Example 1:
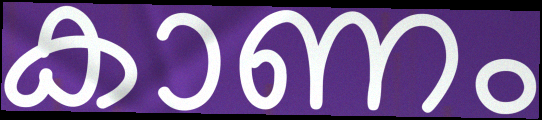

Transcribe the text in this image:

കാണം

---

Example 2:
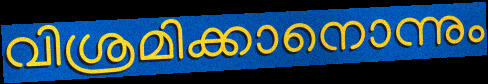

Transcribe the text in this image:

വിശ്രമിക്കാനൊന്നും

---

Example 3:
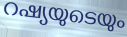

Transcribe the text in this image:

റഷ്യയുടെയും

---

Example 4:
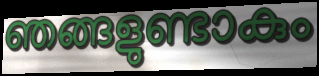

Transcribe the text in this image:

ഞങ്ങളുണ്ടാകും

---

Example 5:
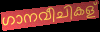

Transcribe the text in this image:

ഗാനവീചികള്